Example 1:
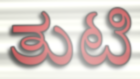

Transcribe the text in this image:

ತುಟಿ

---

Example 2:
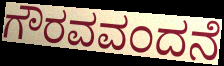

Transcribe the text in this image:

ಗೌರವವಂದನೆ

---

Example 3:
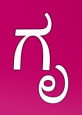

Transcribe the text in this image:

ಗೃ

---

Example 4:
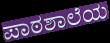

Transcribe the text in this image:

ಪಾಠಶಾಲೆಯ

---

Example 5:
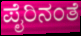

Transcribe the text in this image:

ಪೈರಿನಂತೆ